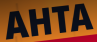
AHTA